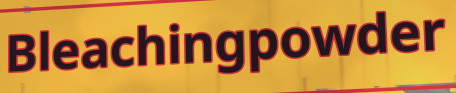
Bleachingpowder